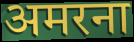
अमरना